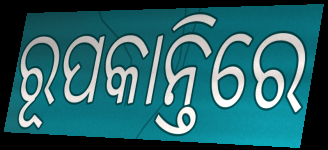
ରୂପକାନ୍ତିରେ